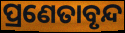
ପ୍ରଣେତାବୃନ୍ଦ